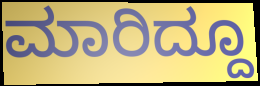
ಮಾರಿದ್ದೂ